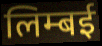
लिम्बई